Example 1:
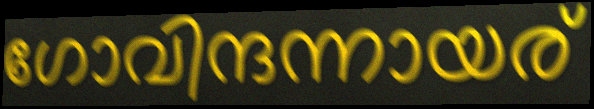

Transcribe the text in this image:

ഗോവിന്ദന്നായര്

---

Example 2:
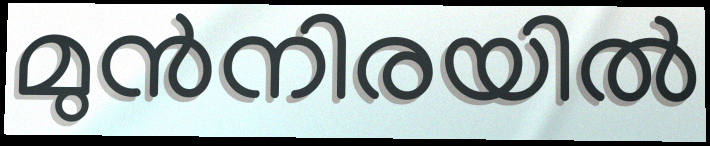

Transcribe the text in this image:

മുൻനിരയിൽ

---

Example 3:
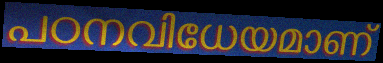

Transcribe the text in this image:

പഠനവിധേയമാണ്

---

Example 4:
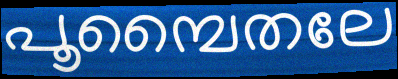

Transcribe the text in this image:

പൂമ്പൈതലേ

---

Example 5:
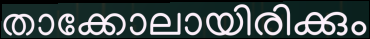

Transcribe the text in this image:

താക്കോലായിരിക്കും